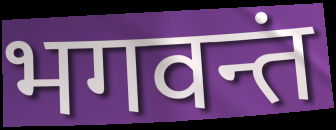
भगवन्तं